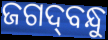
ଜଗଦ୍‌ବନ୍ଧୁ